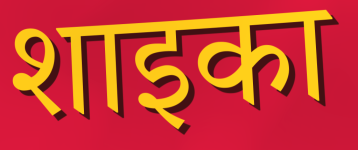
शाइका